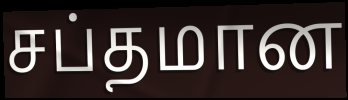
சப்தமான